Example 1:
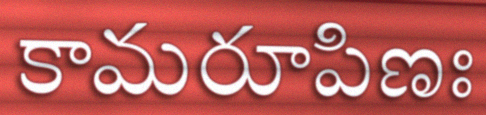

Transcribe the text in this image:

కామరూపిణః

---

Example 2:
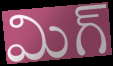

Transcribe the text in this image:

మిగ్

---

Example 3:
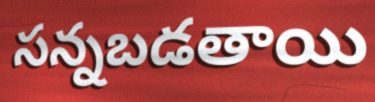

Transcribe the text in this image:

సన్నబడతాయి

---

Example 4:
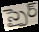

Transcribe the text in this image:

స్పైర్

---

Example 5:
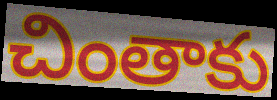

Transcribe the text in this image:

చింతాకు